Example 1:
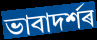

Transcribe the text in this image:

ভাবাদৰ্শৰ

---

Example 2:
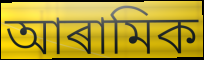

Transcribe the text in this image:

আৰামিক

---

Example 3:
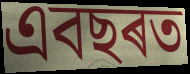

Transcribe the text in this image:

এবছৰত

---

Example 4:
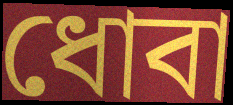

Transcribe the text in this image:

ধোবা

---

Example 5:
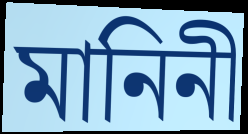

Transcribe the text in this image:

মানিনী